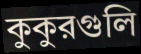
কুকুরগুলি